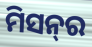
ମିସନ୍‍ର